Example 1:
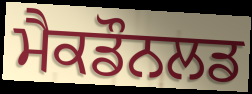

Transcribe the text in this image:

ਮੈਕਡੌਨਲਡ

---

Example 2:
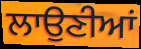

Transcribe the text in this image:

ਲਾਉਣੀਆਂ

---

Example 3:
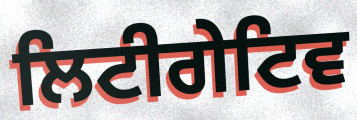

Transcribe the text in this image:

ਲਿਟੀਗੇਟਿਵ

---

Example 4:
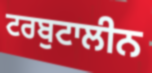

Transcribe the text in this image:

ਟਰਬੁਟਾਲੀਨ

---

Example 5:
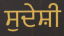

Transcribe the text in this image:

ਸੁਦੇਸ਼ੀ